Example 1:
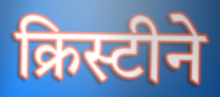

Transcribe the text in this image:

क्रिस्टीने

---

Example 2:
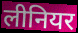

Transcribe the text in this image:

लीनियर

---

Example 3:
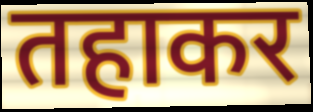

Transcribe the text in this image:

तहाकर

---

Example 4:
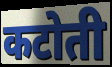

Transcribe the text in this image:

कटोती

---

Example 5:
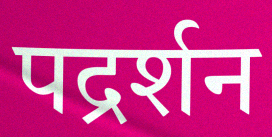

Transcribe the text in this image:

पद्रर्शन